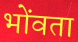
भोंवता